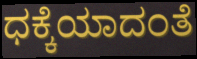
ಧಕ್ಕೆಯಾದಂತೆ